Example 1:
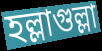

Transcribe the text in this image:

হল্লাগুল্লা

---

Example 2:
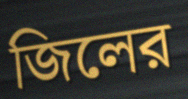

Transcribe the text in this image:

জিলের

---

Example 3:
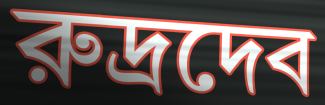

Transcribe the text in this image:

রুদ্রদেব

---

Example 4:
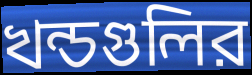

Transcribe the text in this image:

খন্ডগুলির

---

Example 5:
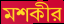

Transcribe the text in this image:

মশকীর